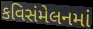
કવિસંમેલનમાં